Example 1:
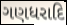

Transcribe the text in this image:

ગણધરાદિ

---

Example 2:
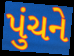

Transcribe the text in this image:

પુંચને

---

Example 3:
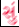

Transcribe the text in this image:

સું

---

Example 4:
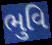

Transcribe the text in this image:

ભુવિ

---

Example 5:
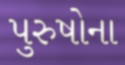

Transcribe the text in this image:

પુરુષોના